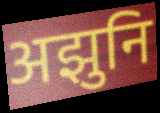
अझुनि